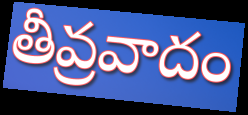
తీవ్రవాదం